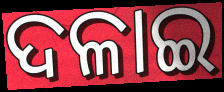
ଦଳାଇ